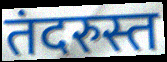
तंदरुस्त